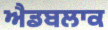
ਐਡਬਲਾਕ